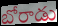
బోరాడు